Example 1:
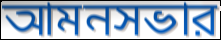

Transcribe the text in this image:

আমনসভার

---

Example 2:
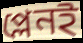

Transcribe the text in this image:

প্লেনই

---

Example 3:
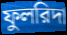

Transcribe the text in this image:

ফুলরিদা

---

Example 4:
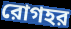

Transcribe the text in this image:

রোগহর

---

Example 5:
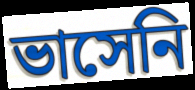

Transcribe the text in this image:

ভাসেনি